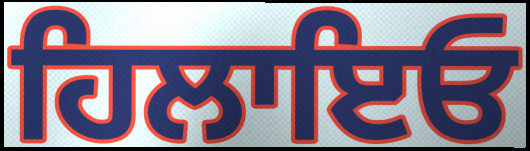
ਹਿਲਾਇਓ